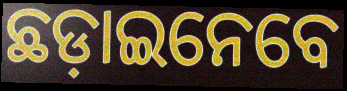
ଛଡ଼ାଇନେବେ